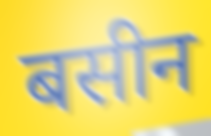
बसीन